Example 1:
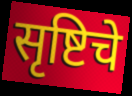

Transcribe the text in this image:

सृष्टिचे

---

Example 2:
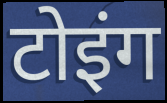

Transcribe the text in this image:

टोइंग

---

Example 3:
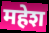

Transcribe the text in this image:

महेश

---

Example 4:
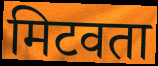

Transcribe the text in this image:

मिटवता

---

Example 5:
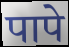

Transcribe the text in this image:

पापे